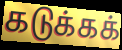
கடுக்கக்